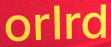
orlrd